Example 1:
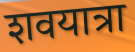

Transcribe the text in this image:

शवयात्रा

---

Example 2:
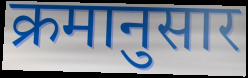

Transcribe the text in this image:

क्रमानुसार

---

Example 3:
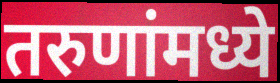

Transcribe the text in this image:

तरुणांमध्ये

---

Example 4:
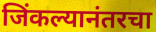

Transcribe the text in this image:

जिंकल्यानंतरचा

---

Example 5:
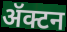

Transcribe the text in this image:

ॲक्टन